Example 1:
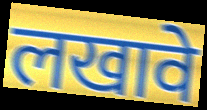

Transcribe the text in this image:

लखावे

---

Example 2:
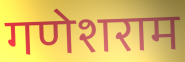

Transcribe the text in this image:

गणेशराम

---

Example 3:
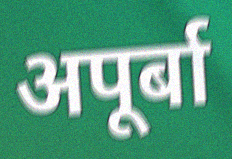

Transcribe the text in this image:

अपूर्बा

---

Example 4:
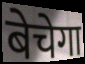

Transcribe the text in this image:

बेचेगा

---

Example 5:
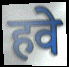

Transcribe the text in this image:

हवे